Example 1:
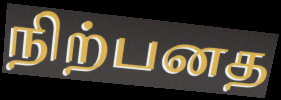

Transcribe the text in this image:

நிற்பனத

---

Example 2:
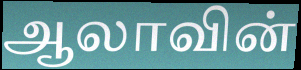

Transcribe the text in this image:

ஆலாவின்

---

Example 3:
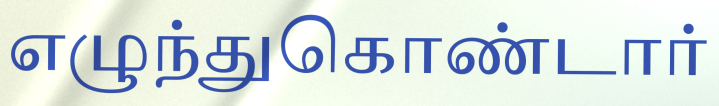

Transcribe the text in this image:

எழுந்துகொண்டார்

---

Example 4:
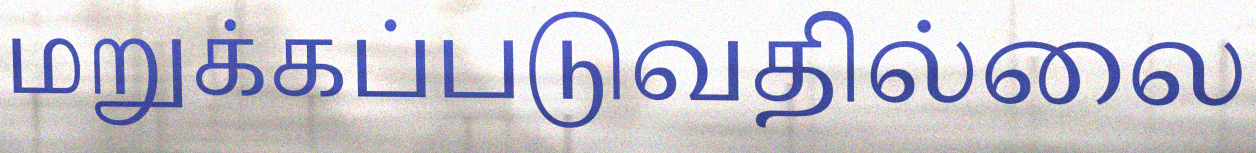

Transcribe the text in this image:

மறுக்கப்படுவதில்லை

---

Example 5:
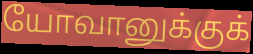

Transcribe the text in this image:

யோவானுக்குக்